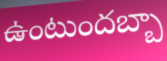
ఉంటుందబ్బా